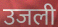
उजली